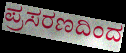
ಪ್ರಸರಣದಿಂದ